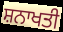
ਸ਼ਨਾਖਤੀ